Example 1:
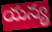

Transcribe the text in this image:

యన్య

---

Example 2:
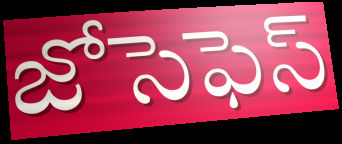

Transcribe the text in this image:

జోసెఫెస్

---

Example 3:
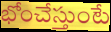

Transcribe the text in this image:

భోంచేస్తుంటే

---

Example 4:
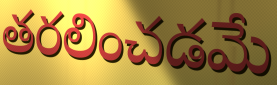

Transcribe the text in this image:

తరలించడమే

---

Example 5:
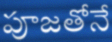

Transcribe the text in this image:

పూజతోనే